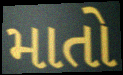
માતો